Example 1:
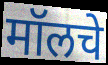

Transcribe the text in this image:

मॉलचे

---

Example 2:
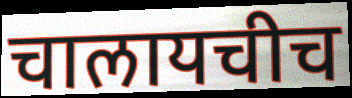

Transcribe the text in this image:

चालायचीच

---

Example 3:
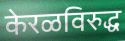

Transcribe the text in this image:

केरळविरुद्ध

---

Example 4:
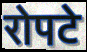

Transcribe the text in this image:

रोपटे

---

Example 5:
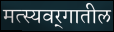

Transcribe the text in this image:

मत्स्यवर्गातील